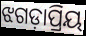
ଝଗଡ଼ାପ୍ରିୟ